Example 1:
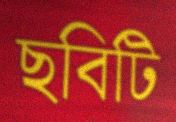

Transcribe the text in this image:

ছবিটি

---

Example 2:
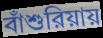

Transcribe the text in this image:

বাঁশুরিয়ায়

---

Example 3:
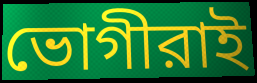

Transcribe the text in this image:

ভোগীরাই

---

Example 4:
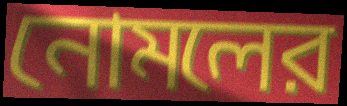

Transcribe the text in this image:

নোমলের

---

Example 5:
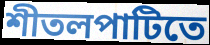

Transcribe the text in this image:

শীতলপাটিতে